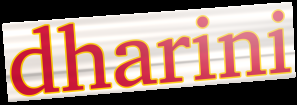
dharini